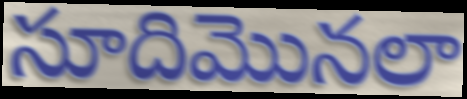
సూదిమొనలా